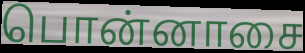
பொன்னாசை